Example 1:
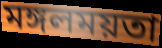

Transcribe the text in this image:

মঙ্গলময়তা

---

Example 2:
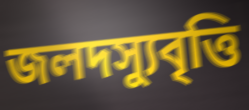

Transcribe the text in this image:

জলদস্যুবৃত্তি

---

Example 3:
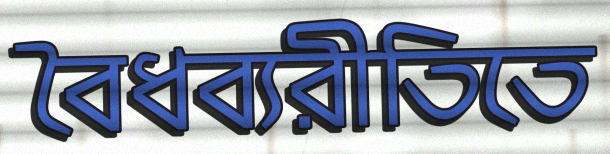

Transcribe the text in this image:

বৈধব্যরীতিতে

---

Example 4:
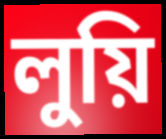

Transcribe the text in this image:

লুয়ি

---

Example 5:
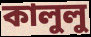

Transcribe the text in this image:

কালুলু